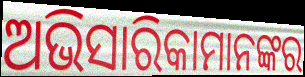
ଅଭିସାରିକାମାନଙ୍କର